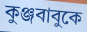
কুঞ্জবাবুকে